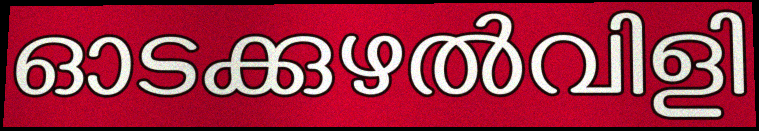
ഓടക്കുഴൽവിളി